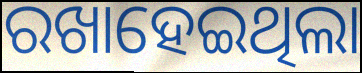
ରଖାହେଇଥିଲା